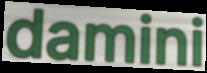
damini